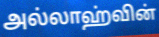
அல்லாஹ்வின்